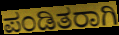
ಪಂಡಿತರಾಗಿ